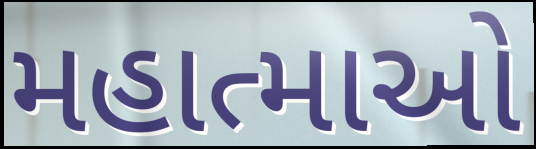
મહાત્માઓ